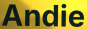
Andie